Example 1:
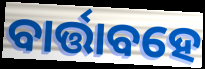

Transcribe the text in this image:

ବାର୍ତ୍ତାବହେ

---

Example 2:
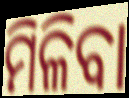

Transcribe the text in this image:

ମିଳିବା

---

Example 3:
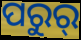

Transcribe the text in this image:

ପରୁର୍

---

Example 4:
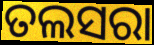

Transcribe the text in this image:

ତଲସରା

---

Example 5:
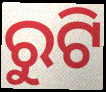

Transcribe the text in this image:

ରୁଟି